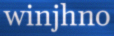
winjhno